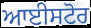
ਆਈਸਟੋਰ